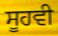
ਸੂਹਵੀ